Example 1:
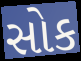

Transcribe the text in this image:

સોક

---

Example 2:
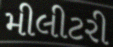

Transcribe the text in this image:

મીલીટરી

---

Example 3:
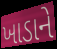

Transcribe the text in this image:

ખાડાને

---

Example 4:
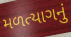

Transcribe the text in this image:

મળત્યાગનું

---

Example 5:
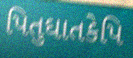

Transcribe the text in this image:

પિતુઘાતકેપિ